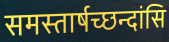
समस्तार्षच्छन्दांसि